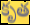
కృత